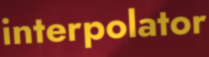
interpolator